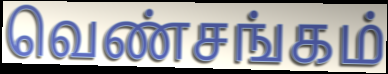
வெண்சங்கம்